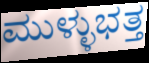
ಮುಳ್ಳುಭತ್ತ